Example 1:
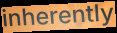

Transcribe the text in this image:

inherently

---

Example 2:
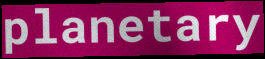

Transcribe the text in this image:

planetary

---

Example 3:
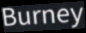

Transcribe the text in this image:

Burney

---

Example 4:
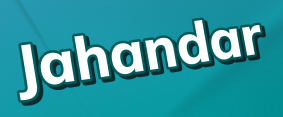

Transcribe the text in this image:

Jahandar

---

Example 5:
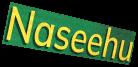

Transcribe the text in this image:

Naseehu